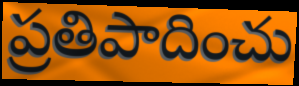
ప్రతిపాదించు